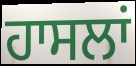
ਹਾਸਲਾਂ